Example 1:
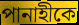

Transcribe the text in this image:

পানাহীকে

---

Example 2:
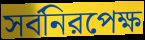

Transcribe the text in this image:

সর্বনিরপেক্ষ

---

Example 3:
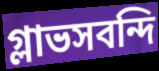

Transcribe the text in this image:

গ্লাভসবন্দি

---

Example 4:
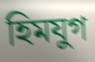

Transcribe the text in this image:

হিমযুগ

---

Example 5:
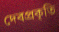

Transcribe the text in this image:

দেবপ্রকৃতি